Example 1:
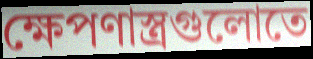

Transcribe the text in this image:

ক্ষেপণাস্ত্রগুলোতে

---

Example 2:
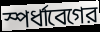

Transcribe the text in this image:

স্পর্ধাবেগের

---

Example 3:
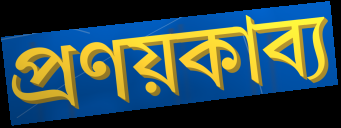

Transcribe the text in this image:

প্রণয়কাব্য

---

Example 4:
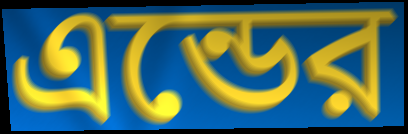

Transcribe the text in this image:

এন্ডের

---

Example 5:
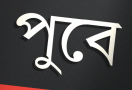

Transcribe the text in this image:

পুবে